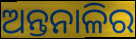
ଅନ୍ତନାଳିର